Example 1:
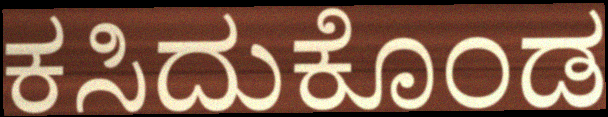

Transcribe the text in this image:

ಕಸಿದುಕೊಂಡ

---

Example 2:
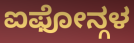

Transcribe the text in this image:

ಐಫೋನ್ಗಳ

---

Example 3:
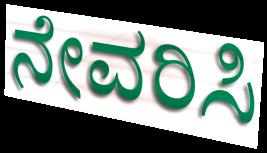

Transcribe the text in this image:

ನೇವರಿಸಿ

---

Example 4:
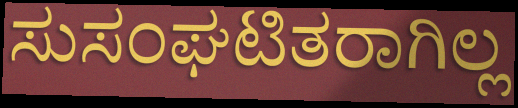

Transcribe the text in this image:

ಸುಸಂಘಟಿತರಾಗಿಲ್ಲ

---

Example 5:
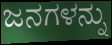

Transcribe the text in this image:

ಜನಗಳನ್ನು